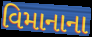
વિમાનાના